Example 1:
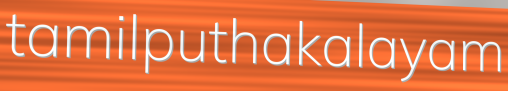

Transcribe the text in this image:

tamilputhakalayam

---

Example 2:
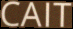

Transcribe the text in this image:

CAIT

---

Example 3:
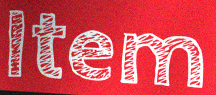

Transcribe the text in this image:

Item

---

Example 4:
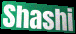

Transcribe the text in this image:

Shashi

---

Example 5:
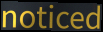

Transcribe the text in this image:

noticed